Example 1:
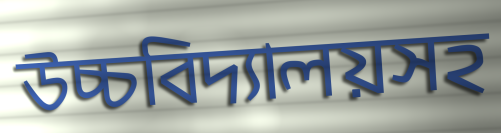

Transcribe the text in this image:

উচ্চবিদ্যালয়সহ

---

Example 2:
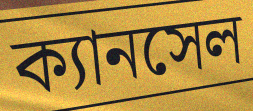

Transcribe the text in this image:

ক্যানসেল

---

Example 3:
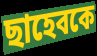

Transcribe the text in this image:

ছাহেবকে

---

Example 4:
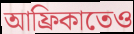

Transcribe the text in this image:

আফ্রিকাতেও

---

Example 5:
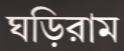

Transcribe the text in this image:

ঘড়িরাম